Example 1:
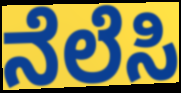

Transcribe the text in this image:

ನೆಲೆಸಿ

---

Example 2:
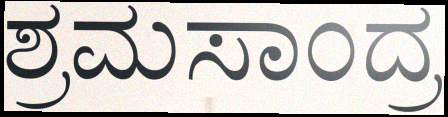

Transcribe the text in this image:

ಶ್ರಮಸಾಂದ್ರ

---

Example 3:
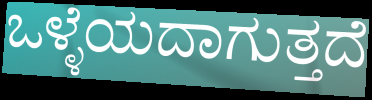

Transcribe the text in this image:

ಒಳ್ಳೆಯದಾಗುತ್ತದೆ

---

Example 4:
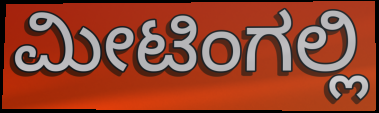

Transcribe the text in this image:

ಮೀಟಿಂಗಲ್ಲಿ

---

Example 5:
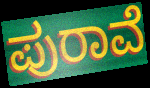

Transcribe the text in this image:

ಪುರಾವೆ